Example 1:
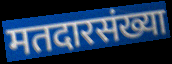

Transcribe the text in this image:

मतदारसंख्या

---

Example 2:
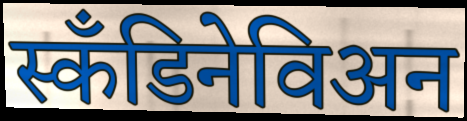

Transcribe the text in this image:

स्कॅंडिनेविअन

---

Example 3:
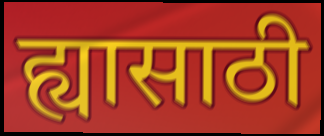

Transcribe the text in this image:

ह्यासाठी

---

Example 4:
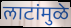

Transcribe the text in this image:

लाटांमुळे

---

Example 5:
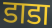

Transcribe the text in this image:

डाडा